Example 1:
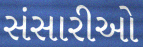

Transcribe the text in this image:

સંસારીઓ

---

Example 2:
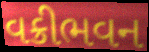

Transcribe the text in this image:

વક્રીભવન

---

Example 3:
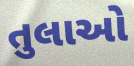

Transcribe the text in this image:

તુલાઓ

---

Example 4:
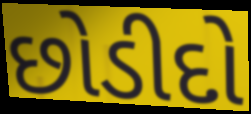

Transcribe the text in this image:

છોડીદો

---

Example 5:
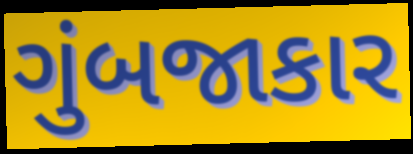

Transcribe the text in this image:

ગુંબજાકાર